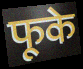
फूके